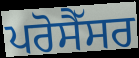
ਪਰੋਸੈੱਸਰ